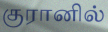
குரானில்